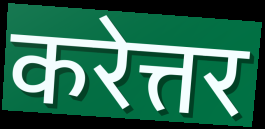
करेत्तर